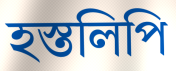
হস্তলিপি